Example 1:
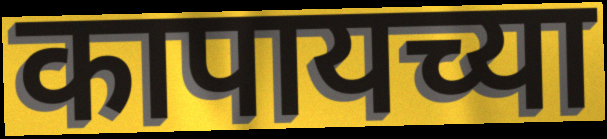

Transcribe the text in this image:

कापायच्या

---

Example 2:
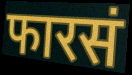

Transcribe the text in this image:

फारसं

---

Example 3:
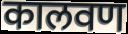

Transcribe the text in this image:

कालवण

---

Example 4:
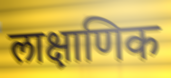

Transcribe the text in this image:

लाक्षाणिक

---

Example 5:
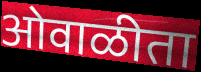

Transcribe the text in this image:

ओवाळीता